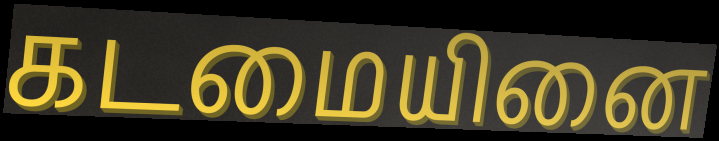
கடமையினை